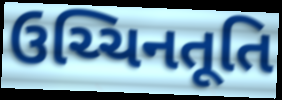
ઉચ્ચિનતૂતિ